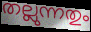
തല്ലുന്നതും